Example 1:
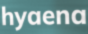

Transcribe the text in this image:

hyaena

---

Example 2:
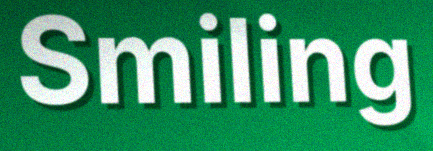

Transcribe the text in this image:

Smiling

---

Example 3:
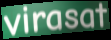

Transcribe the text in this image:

virasat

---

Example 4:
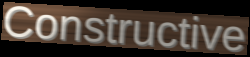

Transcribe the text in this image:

Constructive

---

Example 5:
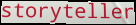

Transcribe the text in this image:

storyteller